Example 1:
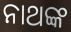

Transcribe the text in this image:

ନାଥଙ୍କ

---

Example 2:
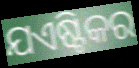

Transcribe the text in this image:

ଯଏଷ୍ଟିକର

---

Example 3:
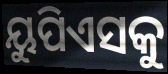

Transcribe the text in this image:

ୟୁପିଏସକୁ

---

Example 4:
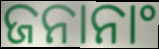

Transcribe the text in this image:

ଜନାନାଂ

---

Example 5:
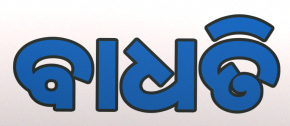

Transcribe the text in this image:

ବାଧତି